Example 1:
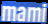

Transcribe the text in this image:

mami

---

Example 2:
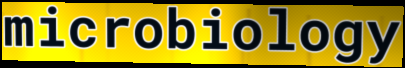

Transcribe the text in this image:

microbiology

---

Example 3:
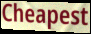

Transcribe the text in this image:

Cheapest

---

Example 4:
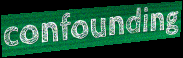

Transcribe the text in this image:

confounding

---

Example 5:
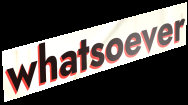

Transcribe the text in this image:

whatsoever